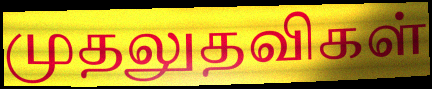
முதலுதவிகள்